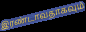
இரண்டாவதாகவும்